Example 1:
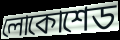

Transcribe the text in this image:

লোকোশেড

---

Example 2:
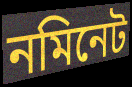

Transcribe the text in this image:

নমিনেট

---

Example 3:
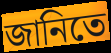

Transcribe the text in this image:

জানিতে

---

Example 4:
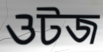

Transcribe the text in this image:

ওটজ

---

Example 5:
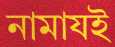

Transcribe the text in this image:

নামাযই